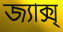
জ্যাক্স্